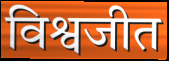
विश्वजीत